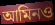
আমিনও